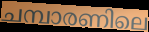
ചമ്പാരണിലെ